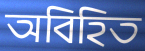
অবিহিত